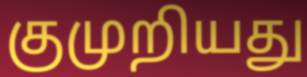
குமுறியது